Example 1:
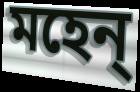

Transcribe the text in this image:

মহেন্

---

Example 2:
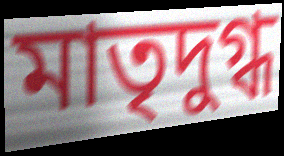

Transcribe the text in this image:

মাতৃদুগ্ধ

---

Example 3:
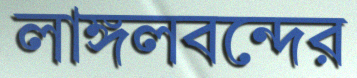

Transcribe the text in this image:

লাঙ্গলবন্দের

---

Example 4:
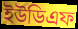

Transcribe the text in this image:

ইউডিএফ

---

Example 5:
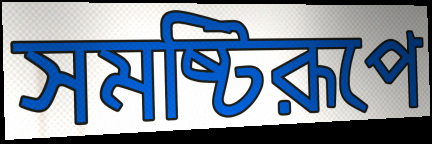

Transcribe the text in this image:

সমষ্টিরূপে